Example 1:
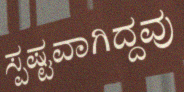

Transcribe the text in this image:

ಸ್ಪಷ್ಟವಾಗಿದ್ದವು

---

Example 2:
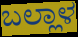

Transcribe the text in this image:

ಬಲ್ಲಾಳ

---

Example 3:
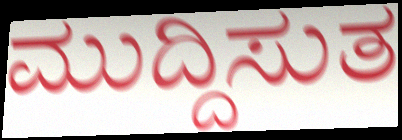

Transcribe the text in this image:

ಮುದ್ದಿಸುತ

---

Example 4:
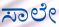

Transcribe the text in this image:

ಸಾಲೇ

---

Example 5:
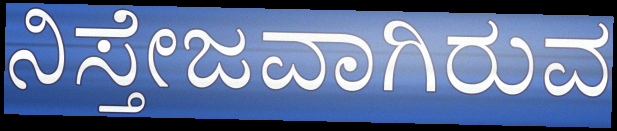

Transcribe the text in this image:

ನಿಸ್ತೇಜವಾಗಿರುವ